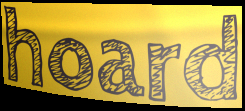
hoard